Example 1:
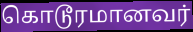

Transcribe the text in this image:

கொடூரமானவர்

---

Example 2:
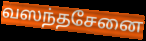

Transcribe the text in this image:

வஸந்தசேனை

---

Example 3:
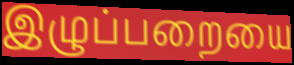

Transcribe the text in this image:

இழுப்பறையை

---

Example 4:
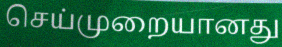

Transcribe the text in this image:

செய்முறையானது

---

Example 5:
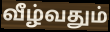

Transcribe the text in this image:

வீழ்வதும்